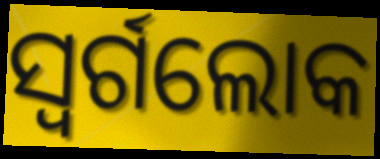
ସ୍ୱର୍ଗଲୋକ